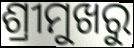
ଶ୍ରୀମୁଖରୁ